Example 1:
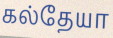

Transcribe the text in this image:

கல்தேயா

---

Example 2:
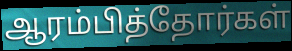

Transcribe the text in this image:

ஆரம்பித்தோர்கள்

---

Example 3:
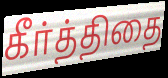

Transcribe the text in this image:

கீர்த்திதை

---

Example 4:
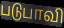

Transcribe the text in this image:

படுபாவி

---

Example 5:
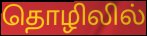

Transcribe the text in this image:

தொழிலில்